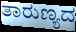
ತಾರುಣ್ಯದ